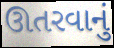
ઊતરવાનું